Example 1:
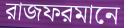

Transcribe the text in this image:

রাজফরমানে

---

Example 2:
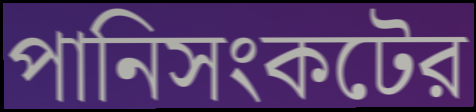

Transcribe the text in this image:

পানিসংকটের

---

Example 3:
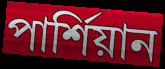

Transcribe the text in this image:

পার্শিয়ান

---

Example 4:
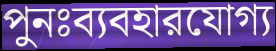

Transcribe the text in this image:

পুনঃব্যবহারযোগ্য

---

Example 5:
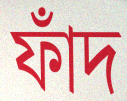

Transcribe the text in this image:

ফাঁদ